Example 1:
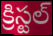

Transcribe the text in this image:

క్రిస్టల్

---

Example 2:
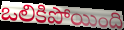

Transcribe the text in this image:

ఒలికిపోయింది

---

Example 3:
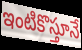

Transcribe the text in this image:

ఇంటికొస్తూనే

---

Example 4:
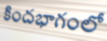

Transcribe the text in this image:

కిందభాగంలో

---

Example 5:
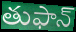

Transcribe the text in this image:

తుఫాన్